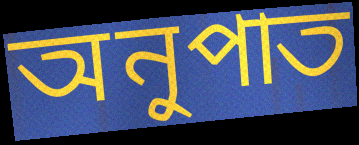
অনুপাত